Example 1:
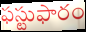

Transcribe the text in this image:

ఫస్టుఫారం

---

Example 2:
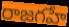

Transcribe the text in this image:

రాజగహే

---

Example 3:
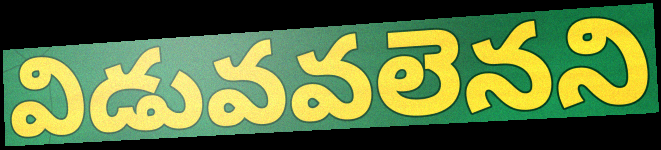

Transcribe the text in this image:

విడువవలెనని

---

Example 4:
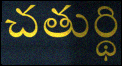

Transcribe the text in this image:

చతుర్థి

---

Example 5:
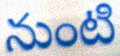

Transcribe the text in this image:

నుంటి